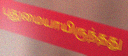
புதுமையாயிருந்தது